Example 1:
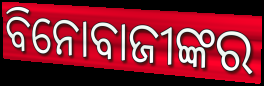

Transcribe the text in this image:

ବିନୋବାଜୀଙ୍କର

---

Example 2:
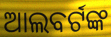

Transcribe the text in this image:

ଆଲବର୍ଟଙ୍କ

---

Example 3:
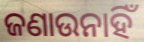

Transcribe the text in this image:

ଜଣାଉନାହିଁ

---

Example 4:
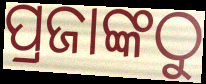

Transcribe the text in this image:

ପ୍ରଜାଙ୍କଠୁ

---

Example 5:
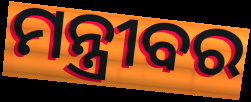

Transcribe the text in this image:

ମନ୍ତ୍ରୀବର